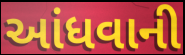
આંધવાની